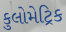
કુલોમેટ્રિક